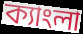
ক্যাংলা